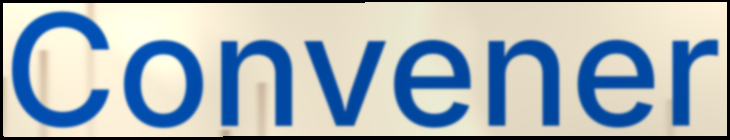
Convener